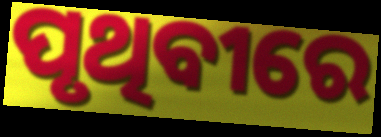
ପୃଥିବୀରେ